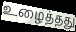
உழைத்தது